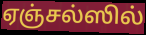
ஏஞ்சல்ஸில்